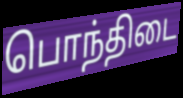
பொந்திடை